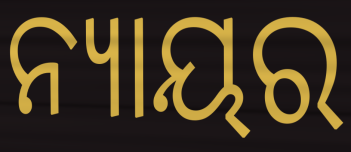
ନ୍ୟାୟର